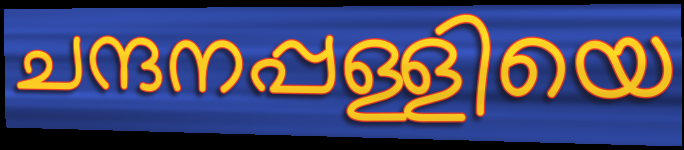
ചന്ദനപ്പള്ളിയെ